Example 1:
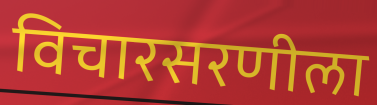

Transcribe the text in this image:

विचारसरणीला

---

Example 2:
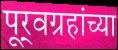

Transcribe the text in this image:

पूर्वग्रहांच्या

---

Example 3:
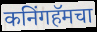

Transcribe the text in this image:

कनिंगहॅमचा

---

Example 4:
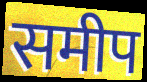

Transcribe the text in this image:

समीप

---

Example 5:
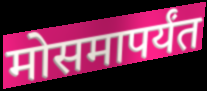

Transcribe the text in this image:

मोसमापर्यंत